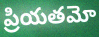
ప్రియతమో